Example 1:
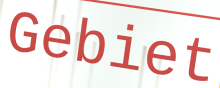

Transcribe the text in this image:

Gebiet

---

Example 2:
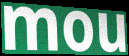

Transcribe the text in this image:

mou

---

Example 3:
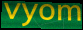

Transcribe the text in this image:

vyom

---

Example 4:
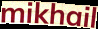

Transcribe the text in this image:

mikhail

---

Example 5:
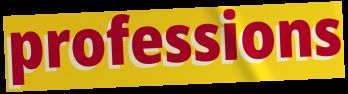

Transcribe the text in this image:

professions